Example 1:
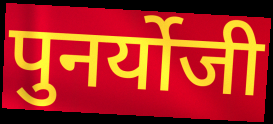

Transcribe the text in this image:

पुनर्योजी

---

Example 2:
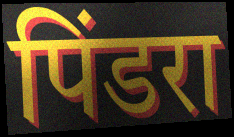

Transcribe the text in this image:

पिंडरा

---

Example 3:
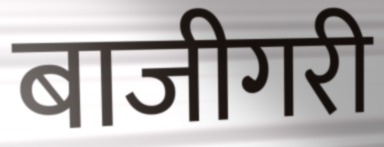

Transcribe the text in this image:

बाजीगरी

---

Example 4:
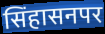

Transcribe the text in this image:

सिंहासनपर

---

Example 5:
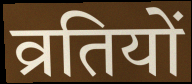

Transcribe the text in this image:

व्रतियों